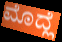
ಮೊದ್ಲೆ